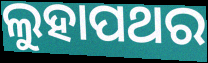
ଲୁହାପଥର